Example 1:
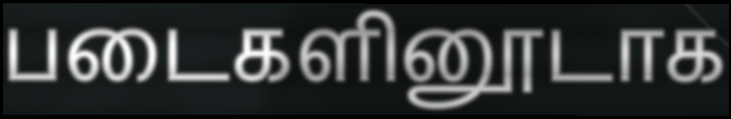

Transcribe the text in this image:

படைகளினூடாக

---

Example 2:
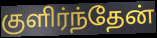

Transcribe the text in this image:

குளிர்ந்தேன்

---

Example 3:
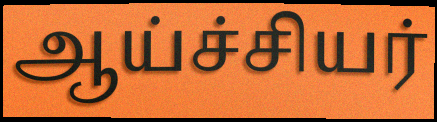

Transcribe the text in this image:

ஆய்ச்சியர்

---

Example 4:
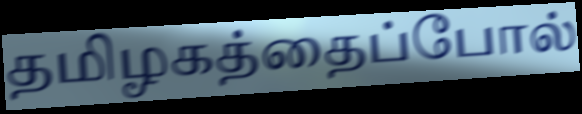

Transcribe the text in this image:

தமிழகத்தைப்போல்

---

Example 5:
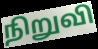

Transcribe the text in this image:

நிறுவி